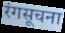
रंगसूचना